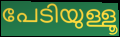
പേടിയുള്ളൂ